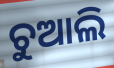
ଚୁଆଲି